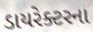
ડાયરેક્ટરના